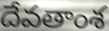
దేవతాంశ